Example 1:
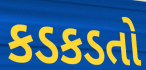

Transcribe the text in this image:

કડકડતો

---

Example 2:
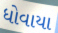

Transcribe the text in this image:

ધોવાયા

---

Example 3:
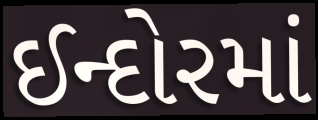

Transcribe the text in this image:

ઈન્દોરમાં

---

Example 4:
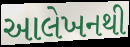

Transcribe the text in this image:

આલેખનથી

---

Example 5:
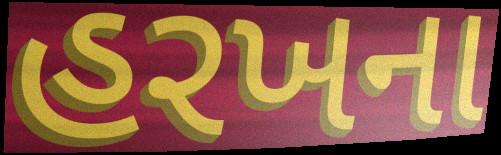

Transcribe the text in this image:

હરખના